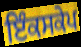
ਇੰਕਸਕੇਪ